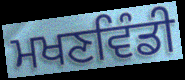
ਮਖਣਵਿੰਡੀ